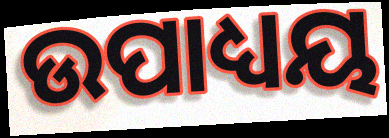
ଉପାଧ୍ୟୟ